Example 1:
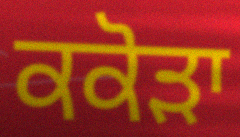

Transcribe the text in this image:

ਕਕੋੜਾ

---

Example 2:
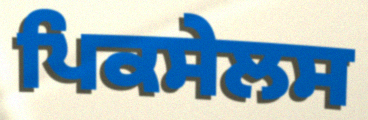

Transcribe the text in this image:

ਪਿਕਸੇਲਸ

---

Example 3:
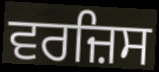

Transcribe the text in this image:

ਵਰਜ਼ਿਸ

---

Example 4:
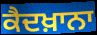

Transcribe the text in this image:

ਕੈਦਖ਼ਾਨਾ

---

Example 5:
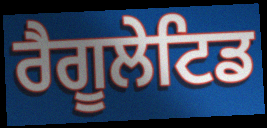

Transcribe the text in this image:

ਰੈਗੂਲੇਟਿਡ